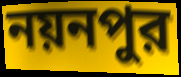
নয়নপুর